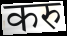
करु